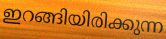
ഇറങ്ങിയിരിക്കുന്ന